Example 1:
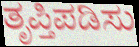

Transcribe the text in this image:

ತೃಪ್ತಿಪಡಿಸು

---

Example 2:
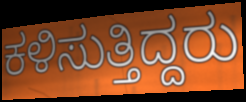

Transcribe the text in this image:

ಕಳಿಸುತ್ತಿದ್ದರು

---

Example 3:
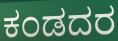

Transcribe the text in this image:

ಕಂಡದರ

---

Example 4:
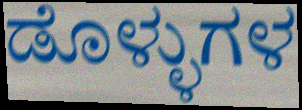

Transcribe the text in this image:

ಡೊಳ್ಳುಗಳ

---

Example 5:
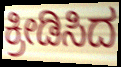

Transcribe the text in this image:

ಕ್ರೀಡಿಸಿದ